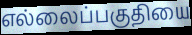
எல்லைப்பகுதியை